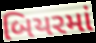
બિયરમાં